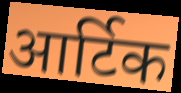
आर्टिक